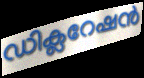
ഡിക്ലറേഷൻ